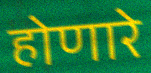
होणारे